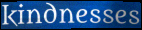
kindnesses